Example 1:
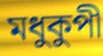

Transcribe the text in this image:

মধুকুপী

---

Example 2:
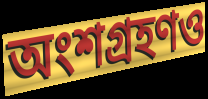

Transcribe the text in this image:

অংশগ্রহণও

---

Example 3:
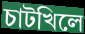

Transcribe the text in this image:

চাটখিলে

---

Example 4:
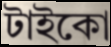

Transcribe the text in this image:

টাইকো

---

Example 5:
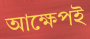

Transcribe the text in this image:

আক্ষেপই